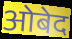
ओबेद